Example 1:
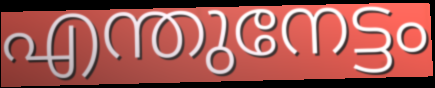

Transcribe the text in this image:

എന്തുനേട്ടം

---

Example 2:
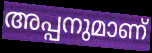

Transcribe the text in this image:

അപ്പനുമാണ്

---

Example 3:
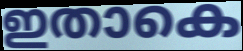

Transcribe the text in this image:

ഇതാകെ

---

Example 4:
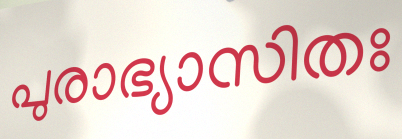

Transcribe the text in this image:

പുരാഭ്യാസിതഃ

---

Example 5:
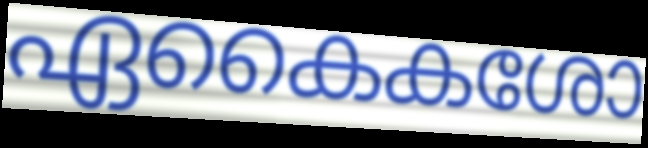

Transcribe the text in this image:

ഏകൈകശോ